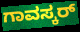
ಗಾವಸ್ಕರ್